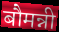
बौमन्नी